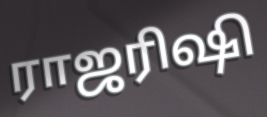
ராஜரிஷி